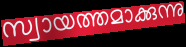
സ്വായത്തമാക്കുന്നു